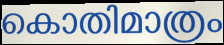
കൊതിമാത്രം